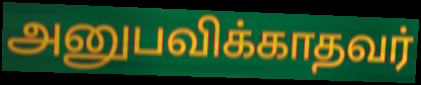
அனுபவிக்காதவர்